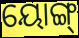
ୟୋଙ୍ଗ୍